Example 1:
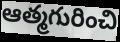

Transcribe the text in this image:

ఆత్మగురించి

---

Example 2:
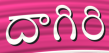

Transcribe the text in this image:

దాగిరి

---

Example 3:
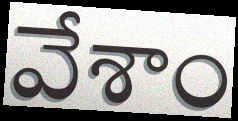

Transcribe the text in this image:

వేశాం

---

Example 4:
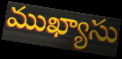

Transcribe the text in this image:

ముఖ్యాసు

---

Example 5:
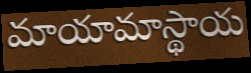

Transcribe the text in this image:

మాయామాస్థాయ